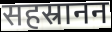
सहस्रानन